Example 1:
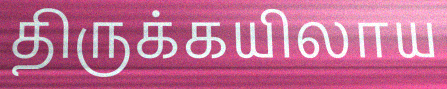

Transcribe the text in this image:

திருக்கயிலாய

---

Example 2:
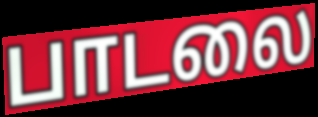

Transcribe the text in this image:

பாடலை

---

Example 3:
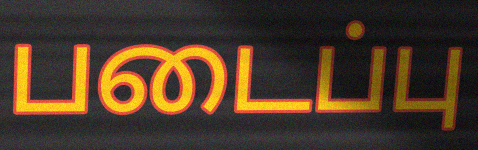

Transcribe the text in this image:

படைப்பு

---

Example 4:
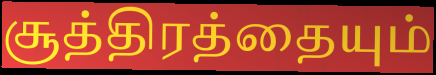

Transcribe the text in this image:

சூத்திரத்தையும்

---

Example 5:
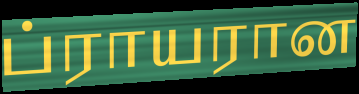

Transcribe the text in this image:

ப்ராயரான